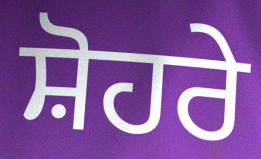
ਸ਼ੋਹਰੇ